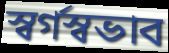
স্বর্গস্বভাব